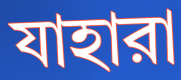
যাহারা